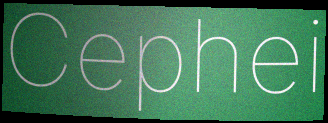
Cephei